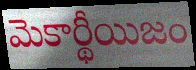
మెకార్థీయిజం